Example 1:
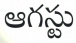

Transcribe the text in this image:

ఆగస్టు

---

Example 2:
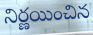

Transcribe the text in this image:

నిర్ణయించిన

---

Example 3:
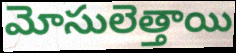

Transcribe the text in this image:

మోసులెత్తాయి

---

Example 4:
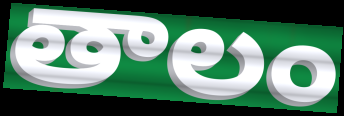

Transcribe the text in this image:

తాలం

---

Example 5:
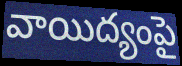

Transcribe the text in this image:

వాయిద్యంపై